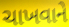
ચાખવાને